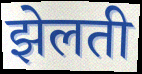
झेलती